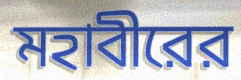
মহাবীরের